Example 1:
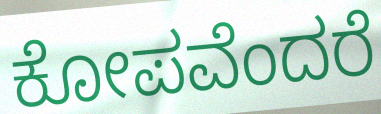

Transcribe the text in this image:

ಕೋಪವೆಂದರೆ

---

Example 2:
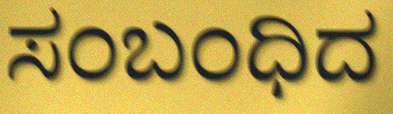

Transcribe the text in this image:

ಸಂಬಂಧಿದ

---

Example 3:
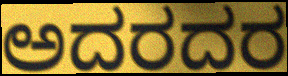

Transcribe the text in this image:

ಅದರದರ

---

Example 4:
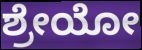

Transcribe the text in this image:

ಶ್ರೇಯೋ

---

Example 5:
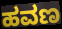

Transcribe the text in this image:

ಹವಣ